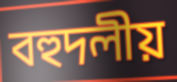
বহুদলীয়